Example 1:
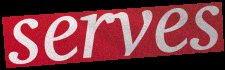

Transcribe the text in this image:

serves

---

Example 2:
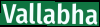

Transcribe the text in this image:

Vallabha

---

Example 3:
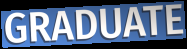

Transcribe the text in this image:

GRADUATE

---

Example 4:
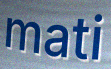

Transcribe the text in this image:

mati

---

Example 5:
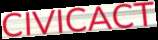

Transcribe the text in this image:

CIVICACT